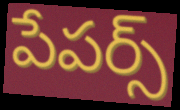
పేపర్స్